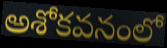
అశోకవనంలో